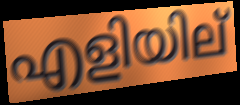
എളിയില്